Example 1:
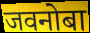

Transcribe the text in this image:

जवनोबा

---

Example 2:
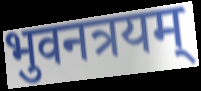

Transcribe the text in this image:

भुवनत्रयम्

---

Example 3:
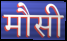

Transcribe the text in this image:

मौसी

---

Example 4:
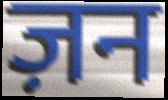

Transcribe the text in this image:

ज़न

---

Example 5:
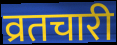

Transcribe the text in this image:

व्रतचारी